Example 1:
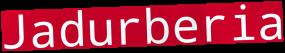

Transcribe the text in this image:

Jadurberia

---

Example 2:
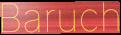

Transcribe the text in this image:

Baruch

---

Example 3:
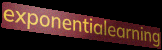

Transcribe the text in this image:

exponentialearning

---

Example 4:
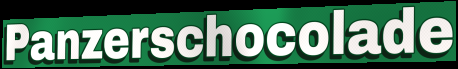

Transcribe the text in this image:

Panzerschocolade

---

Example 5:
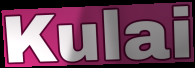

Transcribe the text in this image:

Kulai